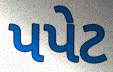
પપેટ